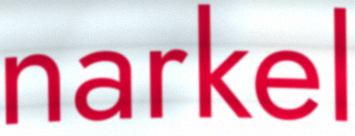
narkel